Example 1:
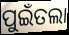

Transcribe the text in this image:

ପୁଇଁତଲା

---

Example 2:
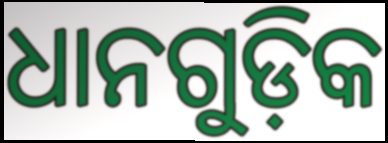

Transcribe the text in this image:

ଧାନଗୁଡ଼ିକ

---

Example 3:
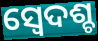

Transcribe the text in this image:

ସ୍ବେଦଶ୍ଚ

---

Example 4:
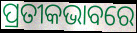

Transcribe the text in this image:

ପ୍ରତୀକଭାବରେ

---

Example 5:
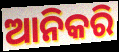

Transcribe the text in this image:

ଆନିକରି